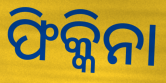
ଫିକ୍କିନା